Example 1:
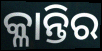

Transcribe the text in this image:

କ୍ଳାନ୍ତିର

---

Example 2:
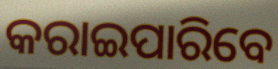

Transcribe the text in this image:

କରାଇପାରିବେ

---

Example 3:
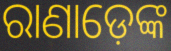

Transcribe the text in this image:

ରାଣାଡ଼େଙ୍କ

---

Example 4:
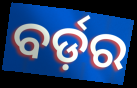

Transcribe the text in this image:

ବର୍ଡ଼ର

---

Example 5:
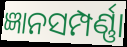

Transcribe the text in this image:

ଜ୍ଞାନସମ୍ପର୍ଣ୍ଣା